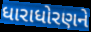
ધારાધોરણને